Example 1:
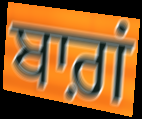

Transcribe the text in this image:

ਬਾਗ਼ਂ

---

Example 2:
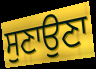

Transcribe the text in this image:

ਸੁਣਾਉਣਾ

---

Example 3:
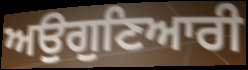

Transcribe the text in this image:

ਅਉਗੁਣਿਆਰੀ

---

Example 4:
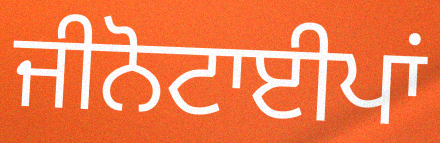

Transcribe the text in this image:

ਜੀਨੋਟਾਈਪਾਂ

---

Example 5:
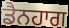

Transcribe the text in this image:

ਡੈਨਹਾਗ